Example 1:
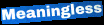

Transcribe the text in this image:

Meaningless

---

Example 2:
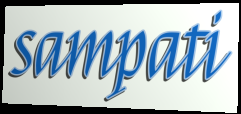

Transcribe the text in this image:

sampati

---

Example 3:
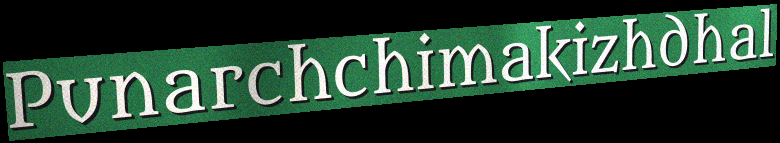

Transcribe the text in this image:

Punarchchimakizhdhal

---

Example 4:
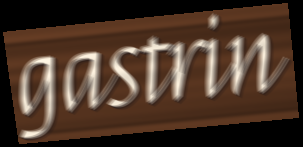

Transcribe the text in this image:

gastrin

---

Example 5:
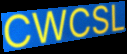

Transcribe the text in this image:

CWCSL